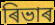
ৰিভাৰ